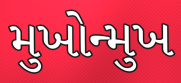
મુખોન્મુખ